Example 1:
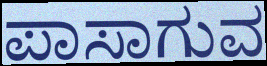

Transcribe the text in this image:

ಪಾಸಾಗುವ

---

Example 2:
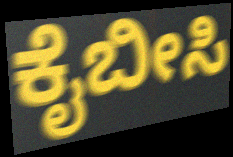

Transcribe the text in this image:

ಕೈಬೀಸಿ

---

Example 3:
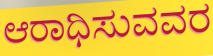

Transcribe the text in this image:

ಆರಾಧಿಸುವವರ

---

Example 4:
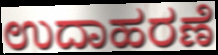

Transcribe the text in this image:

ಉದಾಹರಣೆ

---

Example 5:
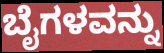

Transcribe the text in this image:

ಬೈಗಳವನ್ನು